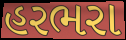
હરભરા